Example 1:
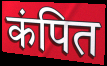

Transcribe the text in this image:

कंपित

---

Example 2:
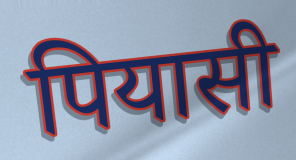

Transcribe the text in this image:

पियासी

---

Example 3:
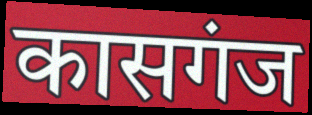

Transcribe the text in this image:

कासगंज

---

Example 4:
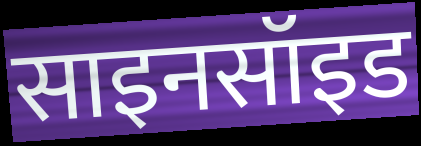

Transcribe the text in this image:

साइनसॉइड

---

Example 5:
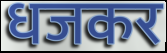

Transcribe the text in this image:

धजकर